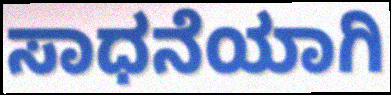
ಸಾಧನೆಯಾಗಿ